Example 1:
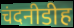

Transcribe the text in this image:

चंदनीडीह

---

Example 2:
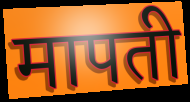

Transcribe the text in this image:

मापती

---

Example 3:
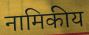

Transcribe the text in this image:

नामिकीय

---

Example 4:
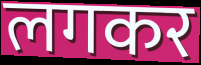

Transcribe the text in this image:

लगकर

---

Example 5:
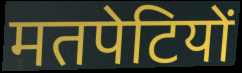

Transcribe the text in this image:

मतपेटियों